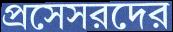
প্রসেসরদের